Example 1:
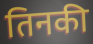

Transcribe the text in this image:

तिनकी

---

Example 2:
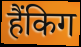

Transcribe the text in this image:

हैंकिग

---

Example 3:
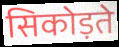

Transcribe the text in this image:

सिकोड़ते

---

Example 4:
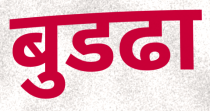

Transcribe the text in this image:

बुडढा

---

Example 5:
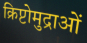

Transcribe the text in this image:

क्रिप्टोमुद्राओं